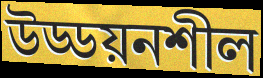
উড্ডয়নশীল